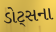
ડોટ્સના